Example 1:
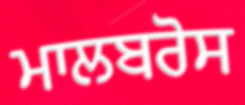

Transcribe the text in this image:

ਮਾਲਬਰੋਸ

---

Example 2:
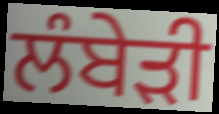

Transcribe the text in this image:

ਲੰਬੇੜੀ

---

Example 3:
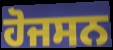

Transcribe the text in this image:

ਹੋਜਸਨ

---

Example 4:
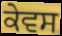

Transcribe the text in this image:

ਕੇਵਸ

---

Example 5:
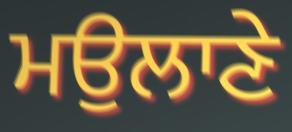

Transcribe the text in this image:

ਮਉਲਾਣੇ